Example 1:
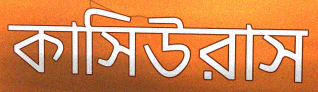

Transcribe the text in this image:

কাসিউরাস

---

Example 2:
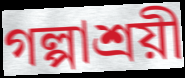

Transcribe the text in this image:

গল্পাশ্রয়ী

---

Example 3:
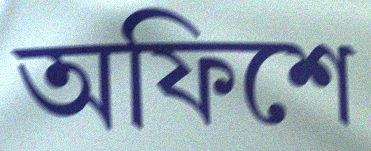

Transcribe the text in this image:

অফিশে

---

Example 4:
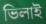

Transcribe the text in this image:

ভিলাই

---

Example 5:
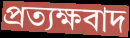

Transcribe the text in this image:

প্রত্যক্ষবাদ